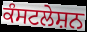
ਕੰਸਟਲੇਸ਼ਨ